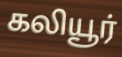
கலியூர்